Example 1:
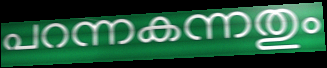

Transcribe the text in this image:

പറന്നകന്നതും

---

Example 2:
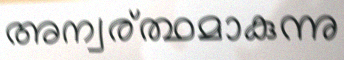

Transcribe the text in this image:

അന്വര്ത്ഥമാകുന്നു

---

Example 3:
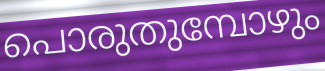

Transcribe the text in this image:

പൊരുതുമ്പോഴും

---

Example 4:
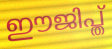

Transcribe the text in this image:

ഈജിപ്ത്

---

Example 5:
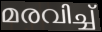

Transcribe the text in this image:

മരവിച്ച്